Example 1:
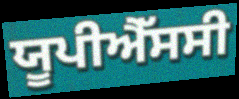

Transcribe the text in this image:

ਯੂਪੀਐੱਸਸੀ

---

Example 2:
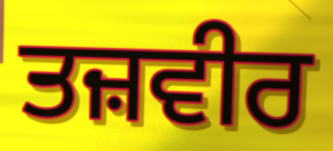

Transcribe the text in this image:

ਤਜ਼ਵੀਰ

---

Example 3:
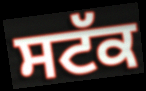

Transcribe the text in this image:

ਸਟੱਕ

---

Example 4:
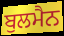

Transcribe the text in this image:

ਬੁਲਮੈਨ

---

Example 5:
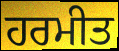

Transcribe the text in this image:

ਹਰਮੀਤ